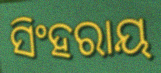
ସିଂହରାୟ